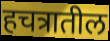
हचत्रातील